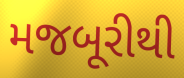
મજબૂરીથી